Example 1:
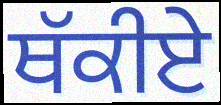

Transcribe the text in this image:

ਥੱਕੀਏ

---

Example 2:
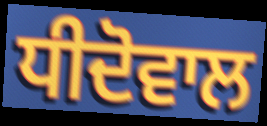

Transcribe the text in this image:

ਧੀਦੋਵਾਲ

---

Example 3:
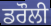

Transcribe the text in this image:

ਡਰੌਲੀ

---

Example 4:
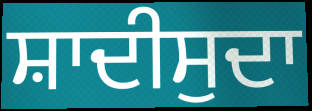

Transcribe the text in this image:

ਸ਼ਾਦੀਸੁਦਾ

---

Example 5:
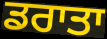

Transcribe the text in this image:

ਡਰਾਤਾ